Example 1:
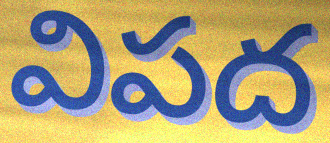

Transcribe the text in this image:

విపద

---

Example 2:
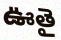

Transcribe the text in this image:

ఊతై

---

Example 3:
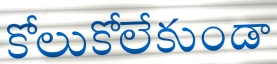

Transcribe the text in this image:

కోలుకోలేకుండా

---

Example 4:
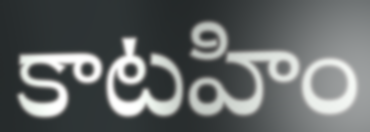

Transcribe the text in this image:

కాటహిం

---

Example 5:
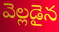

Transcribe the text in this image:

వెల్లడైన